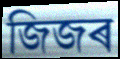
জিজৰ